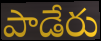
పాడేరు